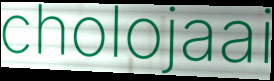
cholojaai